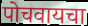
पोचवायचा